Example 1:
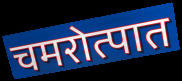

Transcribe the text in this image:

चमरोत्पात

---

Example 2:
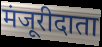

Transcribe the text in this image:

मंजूरीदाता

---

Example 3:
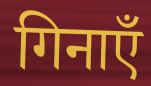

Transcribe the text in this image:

गिनाएँ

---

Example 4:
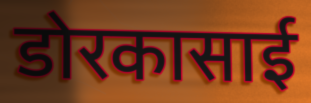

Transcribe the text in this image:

डोरकासाई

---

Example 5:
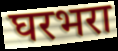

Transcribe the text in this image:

घरभरा